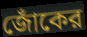
জোঁকের